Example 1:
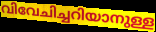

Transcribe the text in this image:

വിവേചിച്ചറിയാനുള്ള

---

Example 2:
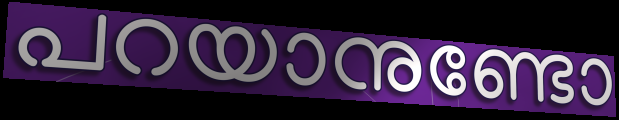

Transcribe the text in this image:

പറയാനുണ്ടോ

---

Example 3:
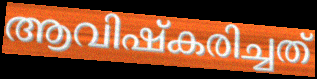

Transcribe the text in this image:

ആവിഷ്കരിച്ചത്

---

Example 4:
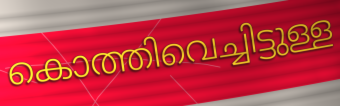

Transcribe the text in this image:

കൊത്തിവെച്ചിട്ടുള്ള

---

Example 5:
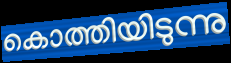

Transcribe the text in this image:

കൊത്തിയിടുന്നു